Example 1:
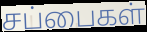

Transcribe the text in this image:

சப்பைகள்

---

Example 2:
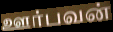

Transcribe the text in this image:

ஊர்பவன்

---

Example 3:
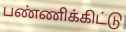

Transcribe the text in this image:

பண்ணிக்கிட்டு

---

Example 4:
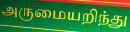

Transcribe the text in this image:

அருமையறிந்து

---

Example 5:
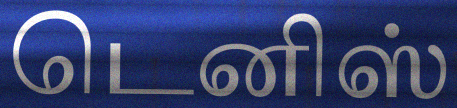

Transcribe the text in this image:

டெனிஸ்